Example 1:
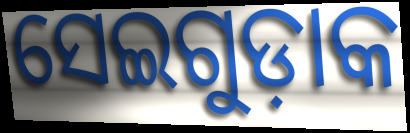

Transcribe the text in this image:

ସେଇଗୁଡ଼ାକ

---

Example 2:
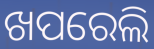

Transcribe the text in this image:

ଖପରେଲି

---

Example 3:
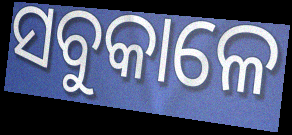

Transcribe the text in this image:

ସବୁକାଳେ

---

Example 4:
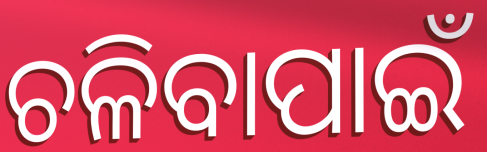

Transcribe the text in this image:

ଚଳିବାପାଇଁ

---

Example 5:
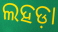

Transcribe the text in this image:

ଲହଡ଼ା